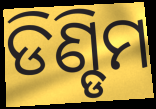
ଡିଣ୍ଡିମ